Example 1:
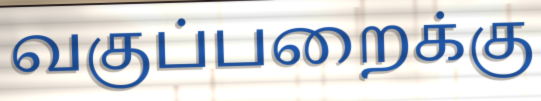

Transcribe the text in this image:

வகுப்பறைக்கு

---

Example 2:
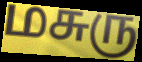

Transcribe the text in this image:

மசுரு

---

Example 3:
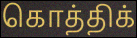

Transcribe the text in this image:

கொத்திக்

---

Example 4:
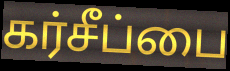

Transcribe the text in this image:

கர்சீப்பை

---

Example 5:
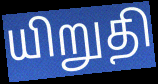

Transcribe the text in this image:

யிறுதி